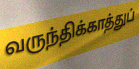
வருந்திக்காத்துப்